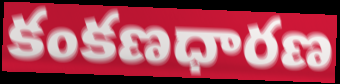
కంకణధారణ